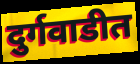
दुर्गवाडीत